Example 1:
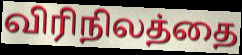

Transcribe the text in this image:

விரிநிலத்தை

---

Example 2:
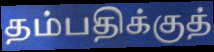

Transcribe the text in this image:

தம்பதிக்குத்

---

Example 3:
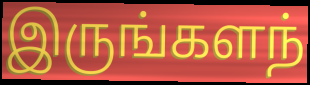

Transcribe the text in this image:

இருங்களந்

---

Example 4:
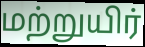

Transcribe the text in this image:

மற்றுயிர்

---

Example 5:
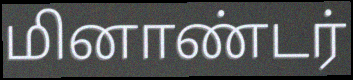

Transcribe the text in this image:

மினாண்டர்